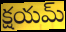
క్షయమ్